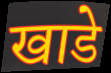
खाडे